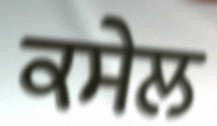
ਕਸੇਲ